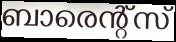
ബാരെന്റ്സ്